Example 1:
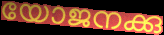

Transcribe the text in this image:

യോജനക്കു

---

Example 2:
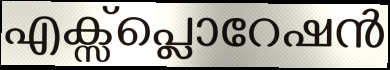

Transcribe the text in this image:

എക്സ്പ്ലൊറേഷൻ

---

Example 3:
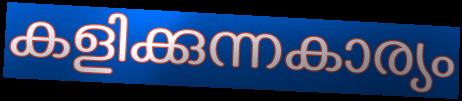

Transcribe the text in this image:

കളിക്കുന്നകാര്യം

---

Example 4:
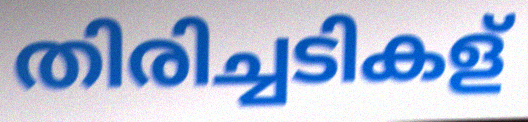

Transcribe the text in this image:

തിരിച്ചടികള്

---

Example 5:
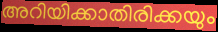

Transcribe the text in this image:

അറിയിക്കാതിരിക്കയും